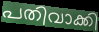
പതിവാക്കി